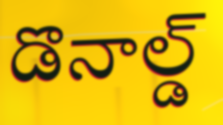
డొనాల్డ్